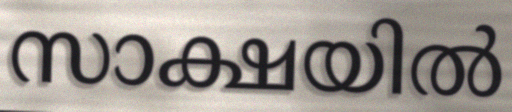
സാക്ഷയിൽ